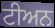
ਟੀਅਨ